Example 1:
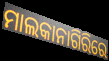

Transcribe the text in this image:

ମାଲକାନାଗିରିରେ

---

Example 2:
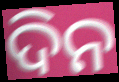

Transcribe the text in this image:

ଦିନ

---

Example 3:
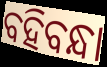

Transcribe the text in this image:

ବହିବନ୍ଧା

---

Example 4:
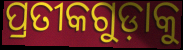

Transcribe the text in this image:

ପ୍ରତୀକଗୁଡ଼ାକୁ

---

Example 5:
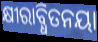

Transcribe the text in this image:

କ୍ଷୀରାବ୍ଧିତନୟା